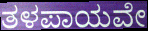
ತಳಪಾಯವೇ